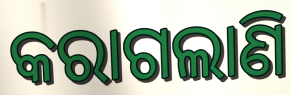
କରାଗଲାଣି